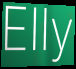
Elly